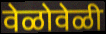
वेळोवेळी